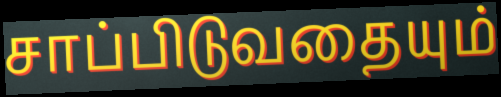
சாப்பிடுவதையும்